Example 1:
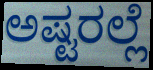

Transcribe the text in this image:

ಅಷ್ಟರಲ್ಲೆ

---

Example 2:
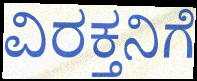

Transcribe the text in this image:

ವಿರಕ್ತನಿಗೆ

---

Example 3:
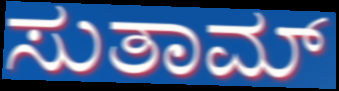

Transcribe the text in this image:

ಸುತಾಮ್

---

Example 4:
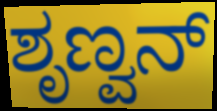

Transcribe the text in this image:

ಶೃಣ್ವನ್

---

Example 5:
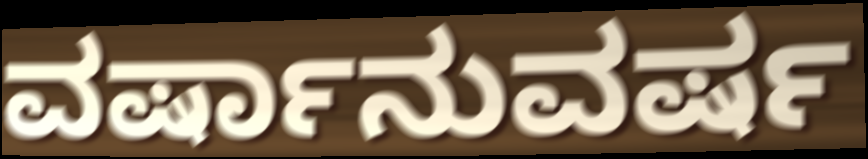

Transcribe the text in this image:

ವರ್ಷಾನುವರ್ಷ